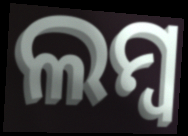
ଲମ୍ୱ